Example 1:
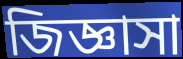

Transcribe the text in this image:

জিজ্ঞাসা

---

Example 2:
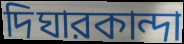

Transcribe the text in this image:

দিঘারকান্দা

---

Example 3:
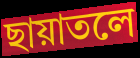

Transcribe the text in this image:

ছায়াতলে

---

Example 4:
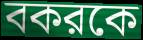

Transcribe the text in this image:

বকরকে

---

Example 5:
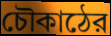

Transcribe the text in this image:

চৌকাঠের